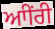
ਆੀਂਰੀ